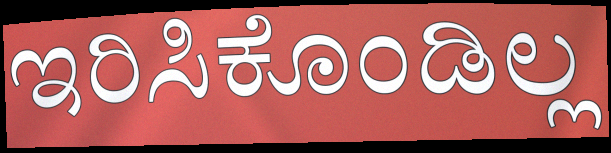
ಇರಿಸಿಕೊಂಡಿಲ್ಲ